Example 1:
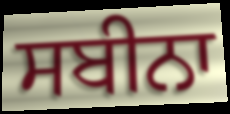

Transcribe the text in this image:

ਸਬੀਨਾ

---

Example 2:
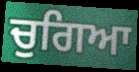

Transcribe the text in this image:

ਚੁਗਿਆ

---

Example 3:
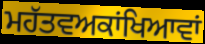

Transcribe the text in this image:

ਮਹੱਤਵਅਕਾਂਖਿਆਵਾਂ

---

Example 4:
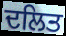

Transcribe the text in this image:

ਦਲਿਤ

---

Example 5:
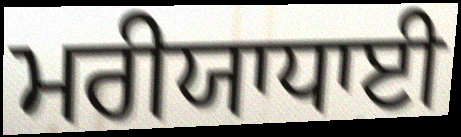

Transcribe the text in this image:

ਮਰੀਯਾਧਾਈ